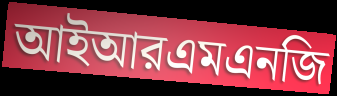
আইআরএমএনজি